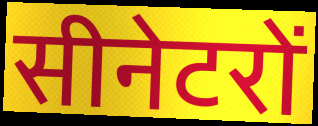
सीनेटरों